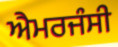
ਐਮਰਜੰਸੀ